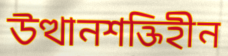
উত্থানশক্তিহীন